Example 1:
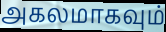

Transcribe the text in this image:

அகலமாகவும்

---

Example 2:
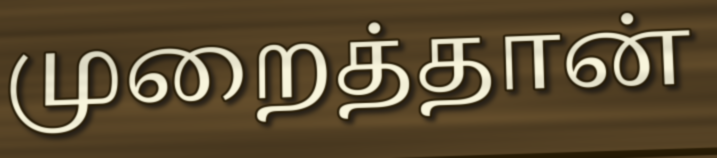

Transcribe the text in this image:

முறைத்தான்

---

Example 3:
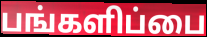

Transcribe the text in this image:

பங்களிப்பை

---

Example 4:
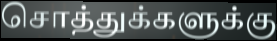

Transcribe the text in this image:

சொத்துக்களுக்கு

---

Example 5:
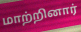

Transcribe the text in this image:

மாற்றினார்